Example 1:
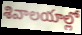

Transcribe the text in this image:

శివాలయాల్లో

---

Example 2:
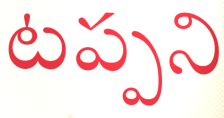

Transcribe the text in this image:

టప్పని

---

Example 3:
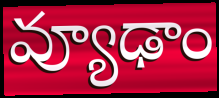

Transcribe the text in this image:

వ్యూఢాం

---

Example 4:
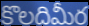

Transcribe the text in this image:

కొలదిమీర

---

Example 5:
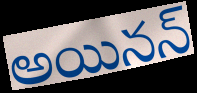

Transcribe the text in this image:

అయినన్